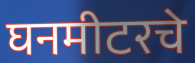
घनमीटरचे